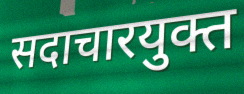
सदाचारयुक्त